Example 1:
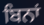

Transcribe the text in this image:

ਬਿਨਾਂ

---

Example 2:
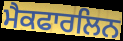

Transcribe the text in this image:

ਮੈਕਫਾਰਲਿਨ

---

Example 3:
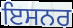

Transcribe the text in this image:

ਇਸਨਰ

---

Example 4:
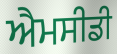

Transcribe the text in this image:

ਐਮਸੀਡੀ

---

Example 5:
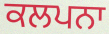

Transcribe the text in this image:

ਕਲਪਨਾ